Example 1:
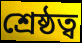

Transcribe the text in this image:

শ্ৰেষ্ঠত্ব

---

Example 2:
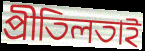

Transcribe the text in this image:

প্ৰীতিলতাই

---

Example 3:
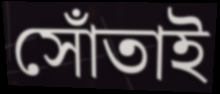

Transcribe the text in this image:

সোঁতাই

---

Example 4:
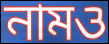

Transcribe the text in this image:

নামও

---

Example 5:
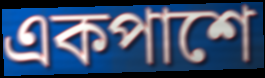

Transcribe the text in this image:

একপাশে